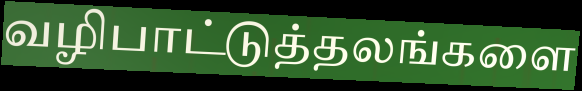
வழிபாட்டுத்தலங்களை